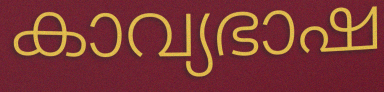
കാവ്യഭാഷ